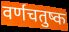
वर्णचतुष्क